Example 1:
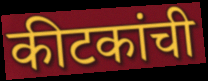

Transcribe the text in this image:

कीटकांची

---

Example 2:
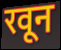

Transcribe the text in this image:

रवून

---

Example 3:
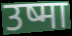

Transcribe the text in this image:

उष्मा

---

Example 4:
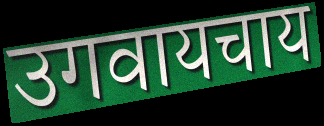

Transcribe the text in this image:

उगवायचाय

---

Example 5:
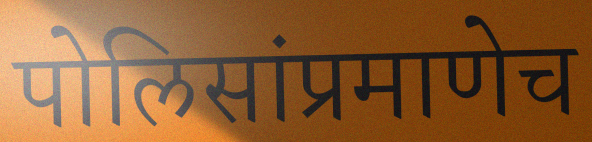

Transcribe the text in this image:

पोलिसांप्रमाणेच